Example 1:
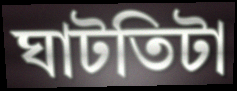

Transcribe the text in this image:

ঘাটতিটা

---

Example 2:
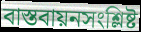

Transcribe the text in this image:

বাস্তবায়নসংশ্লিষ্ট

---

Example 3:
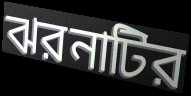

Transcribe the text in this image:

ঝরনাটির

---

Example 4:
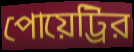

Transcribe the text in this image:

পোয়েট্রির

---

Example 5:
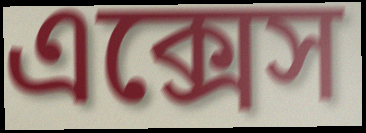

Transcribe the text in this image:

এক্সেস